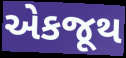
એકજૂથ